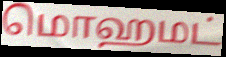
மொஹமட்